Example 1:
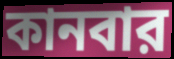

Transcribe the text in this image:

কানবার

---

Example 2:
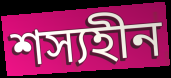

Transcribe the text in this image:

শস্যহীন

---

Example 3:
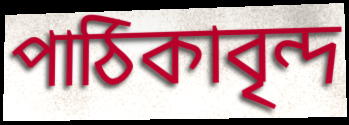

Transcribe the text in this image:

পাঠিকাবৃন্দ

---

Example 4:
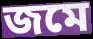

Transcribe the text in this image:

জমে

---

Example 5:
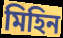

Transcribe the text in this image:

মিহিন